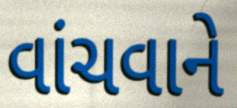
વાંચવાને